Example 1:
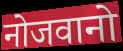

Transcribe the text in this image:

नोजवानो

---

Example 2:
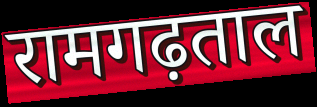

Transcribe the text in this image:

रामगढ़ताल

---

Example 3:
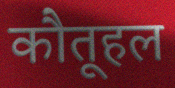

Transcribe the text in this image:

कौतूहल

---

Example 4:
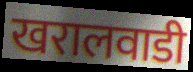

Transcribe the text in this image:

खरालवाडी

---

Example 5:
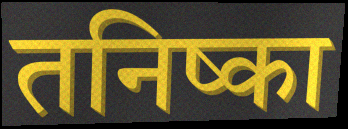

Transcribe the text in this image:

तनिष्का